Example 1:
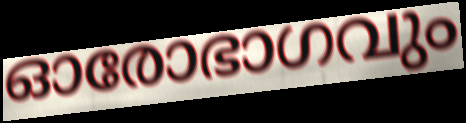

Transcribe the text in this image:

ഓരോഭാഗവും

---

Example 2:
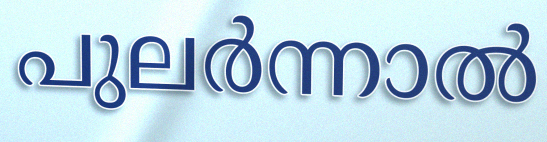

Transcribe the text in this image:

പുലർന്നാൽ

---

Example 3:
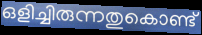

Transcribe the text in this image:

ഒളിച്ചിരുന്നതുകൊണ്ട്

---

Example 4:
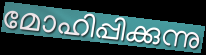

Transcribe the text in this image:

മോഹിപ്പിക്കുന്നു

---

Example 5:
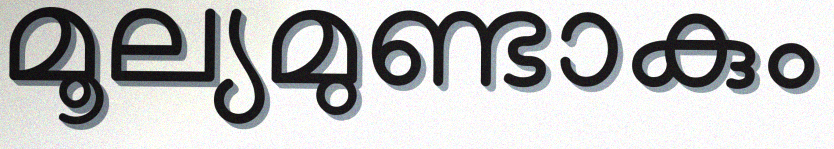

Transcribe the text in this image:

മൂല്യമുണ്ടാകും